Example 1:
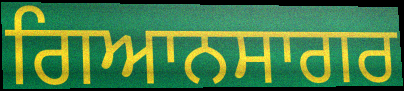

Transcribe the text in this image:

ਗਿਆਨਸਾਗਰ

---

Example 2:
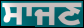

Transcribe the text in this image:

ਸਾਜਣ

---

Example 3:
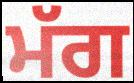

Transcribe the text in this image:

ਮੱਗ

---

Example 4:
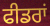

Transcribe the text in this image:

ਫੀਡਰਾਂ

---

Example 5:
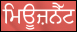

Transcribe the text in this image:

ਮਿਊਜ਼ਨੈੱਟ